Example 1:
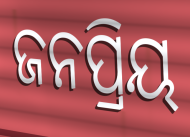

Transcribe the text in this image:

ଜନପ୍ରିୟ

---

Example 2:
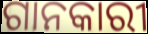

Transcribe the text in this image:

ଗାନକାରୀ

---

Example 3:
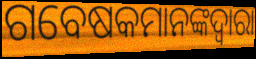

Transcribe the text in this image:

ଗବେଷକମାନଙ୍କଦ୍ୱାରା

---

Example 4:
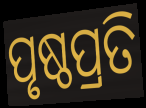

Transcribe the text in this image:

ପୃଷ୍ଠପ୍ରତି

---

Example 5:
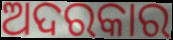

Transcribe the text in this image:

ଅଦରକାର